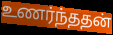
உணர்ந்ததன்